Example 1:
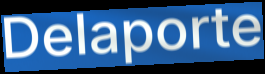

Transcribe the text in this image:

Delaporte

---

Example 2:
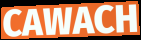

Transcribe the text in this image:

CAWACH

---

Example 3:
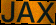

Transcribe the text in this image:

JAX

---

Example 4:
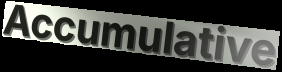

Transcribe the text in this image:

Accumulative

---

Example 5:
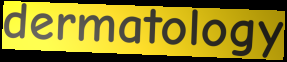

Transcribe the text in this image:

dermatology